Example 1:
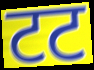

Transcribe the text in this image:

टट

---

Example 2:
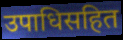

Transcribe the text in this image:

उपाधिसहित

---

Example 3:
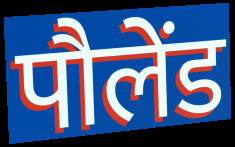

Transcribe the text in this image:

पौलेंड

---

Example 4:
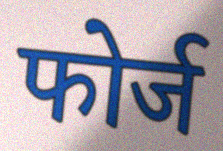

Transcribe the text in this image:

फोर्ज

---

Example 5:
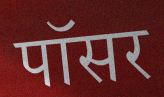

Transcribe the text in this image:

पॉसर